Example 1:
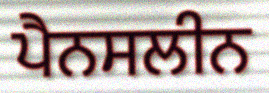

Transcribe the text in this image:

ਪੈਨਸਲੀਨ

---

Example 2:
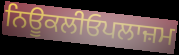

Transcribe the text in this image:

ਨਿਊਕਲੀਓਪਲਾਜ਼ਮ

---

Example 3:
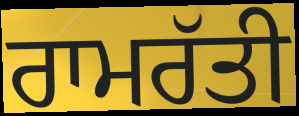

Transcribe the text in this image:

ਰਾਮਰੱਤੀ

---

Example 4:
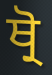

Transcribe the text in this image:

ਥ੍ਰੋ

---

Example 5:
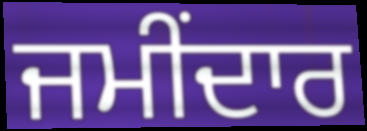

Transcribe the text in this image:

ਜਮੀਂਦਾਰ